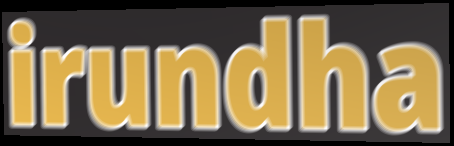
irundha